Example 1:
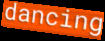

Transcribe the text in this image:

dancing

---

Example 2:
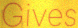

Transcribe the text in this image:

Gives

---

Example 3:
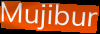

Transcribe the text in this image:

Mujibur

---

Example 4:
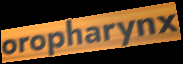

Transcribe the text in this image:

oropharynx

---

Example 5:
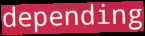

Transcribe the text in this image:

depending